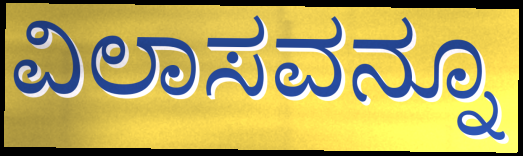
ವಿಲಾಸವನ್ನೂ